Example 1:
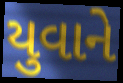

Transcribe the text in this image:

યુવાને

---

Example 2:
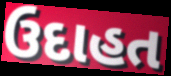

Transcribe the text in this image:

ઉદાહત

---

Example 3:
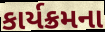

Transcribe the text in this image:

કાર્યક્રમના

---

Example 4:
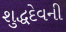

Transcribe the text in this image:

શુદ્ધદેવની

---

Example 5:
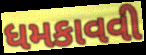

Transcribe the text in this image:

ધમકાવવી